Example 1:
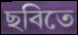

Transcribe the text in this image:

ছবিতে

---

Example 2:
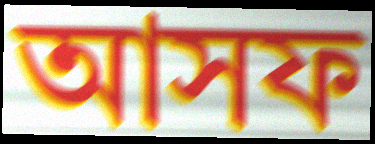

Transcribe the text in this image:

আসফ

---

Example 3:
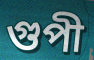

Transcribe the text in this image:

গুপী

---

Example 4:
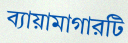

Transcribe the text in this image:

ব্যায়ামাগারটি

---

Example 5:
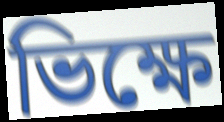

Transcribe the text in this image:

ভিক্ষে